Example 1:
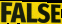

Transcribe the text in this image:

FALSE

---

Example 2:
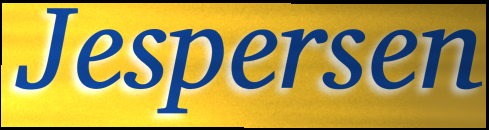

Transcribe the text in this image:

Jespersen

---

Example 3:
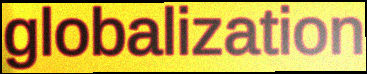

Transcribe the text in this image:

globalization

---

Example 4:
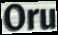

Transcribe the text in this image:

Oru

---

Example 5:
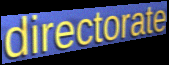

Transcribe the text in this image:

directorate